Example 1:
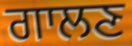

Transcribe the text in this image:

ਗਾਲਣ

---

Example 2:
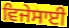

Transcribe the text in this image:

ਵਿਜੇਸਾਈ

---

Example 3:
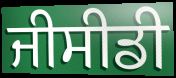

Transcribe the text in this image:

ਜੀਸੀਡੀ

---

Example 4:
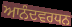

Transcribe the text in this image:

ਆਨੰਦਵਰਧਨ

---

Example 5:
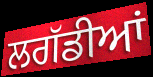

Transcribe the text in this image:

ਲਗੱਡੀਆਂ